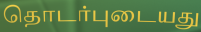
தொடர்புடையது